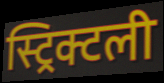
स्ट्रिक्टली